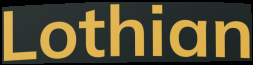
Lothian